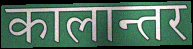
कालान्तर